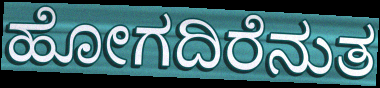
ಹೋಗದಿರೆನುತ